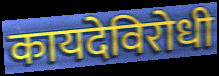
कायदेविरोधी